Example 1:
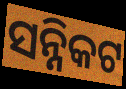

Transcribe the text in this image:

ସନ୍ନିକଟ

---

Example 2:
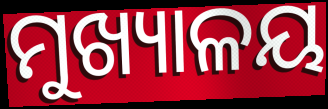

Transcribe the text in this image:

ମୁଖ୍ୟାଳୟ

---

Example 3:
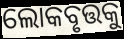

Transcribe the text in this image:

ଲୋକବୃତ୍ତକୁ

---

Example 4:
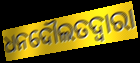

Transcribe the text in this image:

ଧନଦୌଲତଦ୍ଵାରା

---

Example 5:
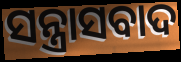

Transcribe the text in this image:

ସନ୍ତ୍ରାସବାଦ